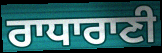
ਰਾਧਾਰਾਣੀ